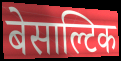
बेसाल्टिक